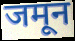
जमून